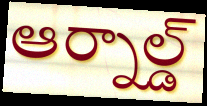
ఆర్నాల్డ్